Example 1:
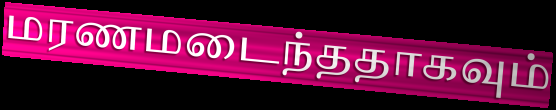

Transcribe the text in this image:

மரணமடைந்ததாகவும்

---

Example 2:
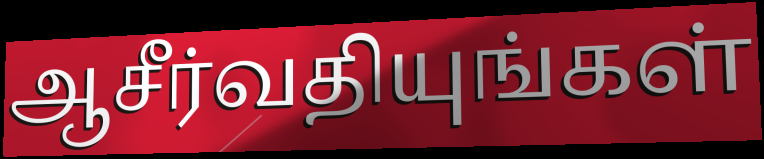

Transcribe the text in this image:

ஆசீர்வதியுங்கள்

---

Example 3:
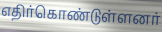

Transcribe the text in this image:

எதிர்கொண்டுள்ளனர்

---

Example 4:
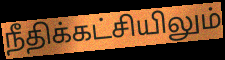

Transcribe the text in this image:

நீதிக்கட்சியிலும்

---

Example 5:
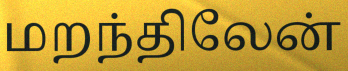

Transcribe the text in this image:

மறந்திலேன்